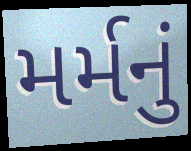
મર્મનું